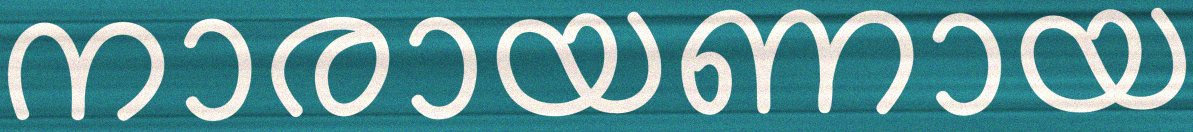
നാരായണായ